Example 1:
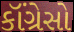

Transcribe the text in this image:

કૉંગ્રેસો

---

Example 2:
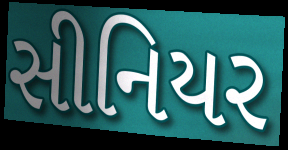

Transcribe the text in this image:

સીનિયર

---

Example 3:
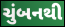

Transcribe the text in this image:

ચુંબનથી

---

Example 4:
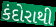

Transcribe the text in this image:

કંદોરાથી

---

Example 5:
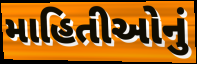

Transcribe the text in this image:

માહિતીઓનું